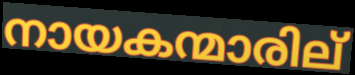
നായകന്മാരില്